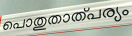
പൊതുതാത്പര്യം